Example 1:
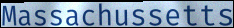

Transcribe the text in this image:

Massachussetts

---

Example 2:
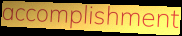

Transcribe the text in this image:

accomplishment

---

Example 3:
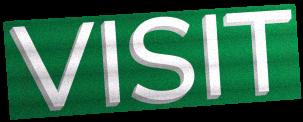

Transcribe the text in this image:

VISIT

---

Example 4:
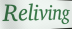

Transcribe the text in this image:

Reliving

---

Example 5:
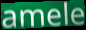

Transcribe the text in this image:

amele